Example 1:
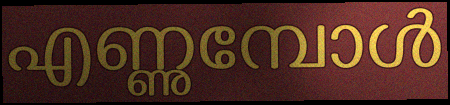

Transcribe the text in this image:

എണ്ണുമ്പോൾ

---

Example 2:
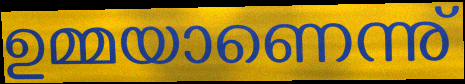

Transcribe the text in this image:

ഉമ്മയാണെന്നു്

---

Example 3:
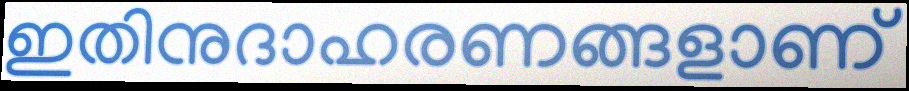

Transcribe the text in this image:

ഇതിനുദാഹരണങ്ങളാണ്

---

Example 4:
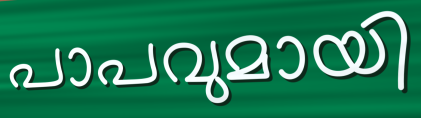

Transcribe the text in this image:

പാപവുമായി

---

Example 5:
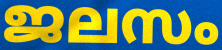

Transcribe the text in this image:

ജലസം